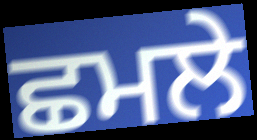
ਛਮਲੇ